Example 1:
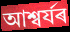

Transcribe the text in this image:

আশ্বৰ্যৰ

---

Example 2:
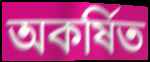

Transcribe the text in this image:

অকৰ্ষিত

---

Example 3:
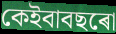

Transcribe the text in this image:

কেইবাবছৰো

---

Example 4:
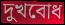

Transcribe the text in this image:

দুখবোধ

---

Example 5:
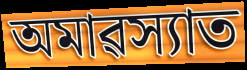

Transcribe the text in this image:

অমাৱস্যাত